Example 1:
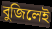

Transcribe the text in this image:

বুজিলেই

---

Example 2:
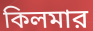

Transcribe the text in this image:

কিলমার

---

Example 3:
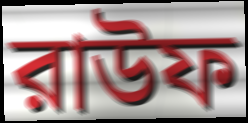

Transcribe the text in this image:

রাউফ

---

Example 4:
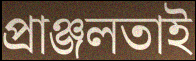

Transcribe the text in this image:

প্রাঞ্জলতাই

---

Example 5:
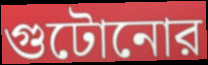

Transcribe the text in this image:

গুটোনোর